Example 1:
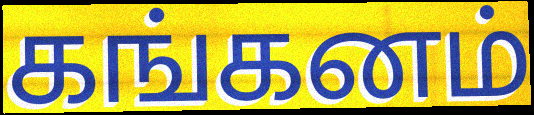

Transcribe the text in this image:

கங்கனம்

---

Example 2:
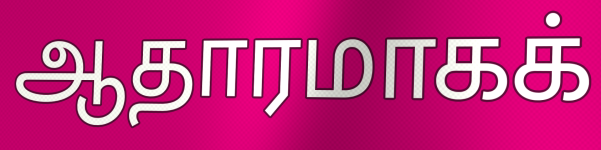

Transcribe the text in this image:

ஆதாரமாகக்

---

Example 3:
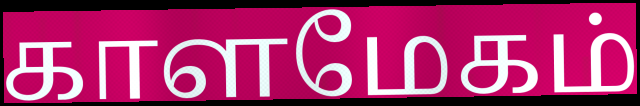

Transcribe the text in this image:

காளமேகம்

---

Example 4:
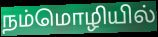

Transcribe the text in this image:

நம்மொழியில்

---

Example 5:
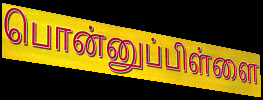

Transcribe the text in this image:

பொன்னுப்பிள்ளை